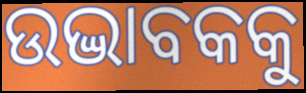
ଉଦ୍ଭାବକକୁ